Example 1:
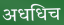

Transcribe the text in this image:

अधधिच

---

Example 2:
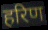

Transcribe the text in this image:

हरिण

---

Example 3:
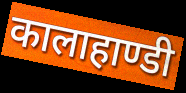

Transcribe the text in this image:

कालाहाण्डी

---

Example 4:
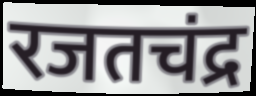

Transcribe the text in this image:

रजतचंद्र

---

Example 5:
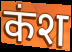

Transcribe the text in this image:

कंश